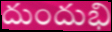
దుందుభి